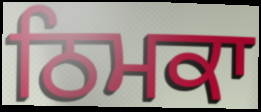
ਠਿਮਕਾ